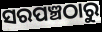
ସରପଞ୍ଚଠାରୁ